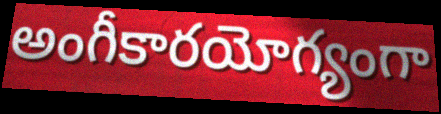
అంగీకారయోగ్యంగా